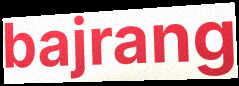
bajrang